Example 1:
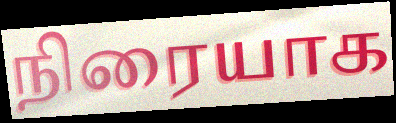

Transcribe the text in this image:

நிரையாக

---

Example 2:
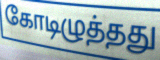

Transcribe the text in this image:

கோடிழுத்தது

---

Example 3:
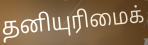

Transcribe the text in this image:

தனியுரிமைக்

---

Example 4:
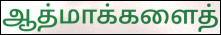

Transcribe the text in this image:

ஆத்மாக்களைத்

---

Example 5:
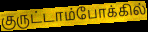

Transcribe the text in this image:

குருட்டாம்போக்கில்